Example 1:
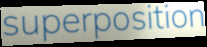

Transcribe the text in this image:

superposition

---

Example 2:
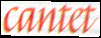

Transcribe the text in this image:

cantet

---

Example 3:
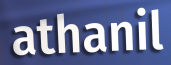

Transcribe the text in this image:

athanil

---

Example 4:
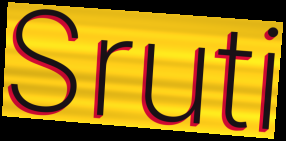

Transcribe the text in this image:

Sruti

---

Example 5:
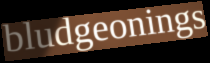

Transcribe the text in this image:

bludgeonings